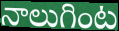
నాలుగింట